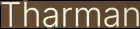
Tharman